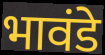
भावंडे